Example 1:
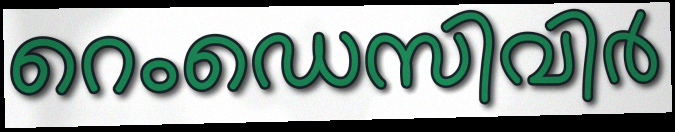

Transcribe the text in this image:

റെംഡെസിവിർ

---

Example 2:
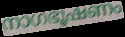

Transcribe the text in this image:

നാഗഭൂഷണം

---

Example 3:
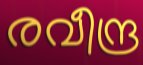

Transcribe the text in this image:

രവീന്ദ്ര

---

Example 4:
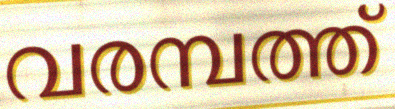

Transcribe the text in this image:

വരമ്പത്ത്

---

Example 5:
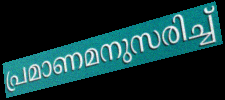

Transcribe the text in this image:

പ്രമാണമനുസരിച്ച്